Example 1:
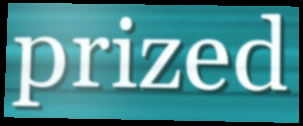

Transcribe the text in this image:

prized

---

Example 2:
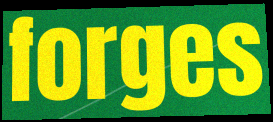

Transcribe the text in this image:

forges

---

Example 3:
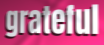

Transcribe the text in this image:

grateful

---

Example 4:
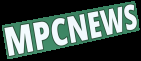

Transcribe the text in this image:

MPCNEWS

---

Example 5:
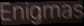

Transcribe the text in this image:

Enigmas